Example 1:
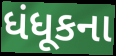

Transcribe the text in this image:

ધંધૂકના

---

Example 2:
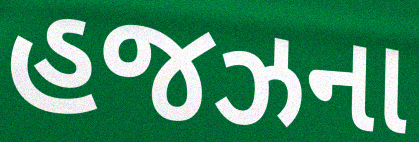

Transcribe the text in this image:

હજઝના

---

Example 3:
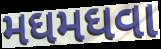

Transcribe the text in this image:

મઘમઘવા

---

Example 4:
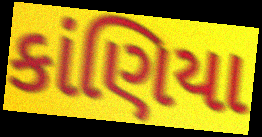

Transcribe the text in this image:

કાંણિયા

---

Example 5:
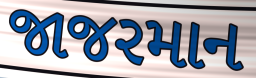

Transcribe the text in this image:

જાજરમાન